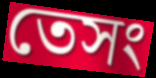
তেসং